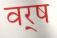
वर्ष